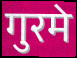
गुरमे